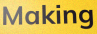
Making